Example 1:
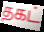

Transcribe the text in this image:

தகட்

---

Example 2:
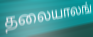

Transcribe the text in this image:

தலையாலங்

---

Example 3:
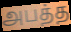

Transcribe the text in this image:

அபத்த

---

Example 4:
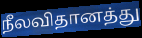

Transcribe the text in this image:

நீலவிதானத்து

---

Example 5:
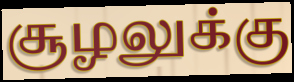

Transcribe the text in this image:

சூழலுக்கு